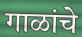
गाळांचे